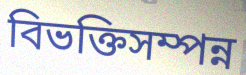
বিভক্তিসম্পন্ন